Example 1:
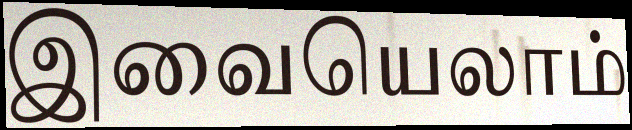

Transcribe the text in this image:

இவையெலாம்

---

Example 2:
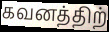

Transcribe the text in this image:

கவனத்திற்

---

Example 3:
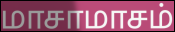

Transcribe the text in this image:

மாசாமாசம்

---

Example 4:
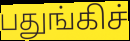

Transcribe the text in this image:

பதுங்கிச்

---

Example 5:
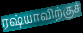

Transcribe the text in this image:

ரஷ்யாவிற்குச்